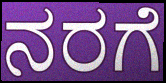
ನರಗೆ